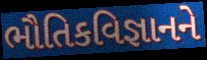
ભૌતિકવિજ્ઞાનને